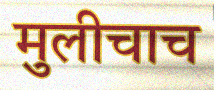
मुलीचाच